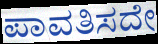
ಪಾವತಿಸದೇ